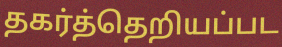
தகர்த்தெறியப்பட